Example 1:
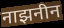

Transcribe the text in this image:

नाझनीन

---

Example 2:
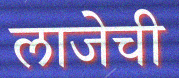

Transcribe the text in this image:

लाजेची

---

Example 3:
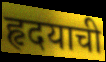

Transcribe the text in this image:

हृदयाची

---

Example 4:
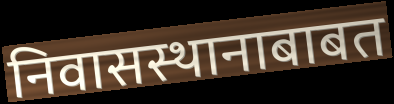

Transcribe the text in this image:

निवासस्थानाबाबत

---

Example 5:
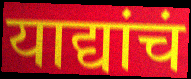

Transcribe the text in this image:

याद्यांचं